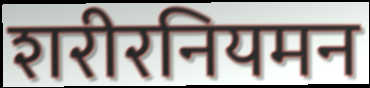
शरीरनियमन